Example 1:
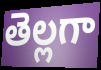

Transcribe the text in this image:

తెల్లగా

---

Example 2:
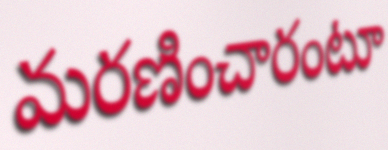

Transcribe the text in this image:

మరణించారంటూ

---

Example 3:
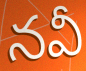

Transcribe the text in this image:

నవీ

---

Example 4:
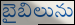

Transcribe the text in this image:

బైబిలును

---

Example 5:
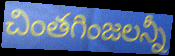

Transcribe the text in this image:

చింతగింజలన్నీ